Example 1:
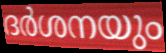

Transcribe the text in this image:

ദർശനയും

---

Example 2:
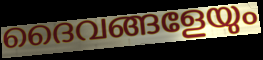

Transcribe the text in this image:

ദൈവങ്ങളേയും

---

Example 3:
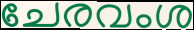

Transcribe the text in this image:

ചേരവംശ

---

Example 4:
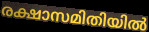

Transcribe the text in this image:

രക്ഷാസമിതിയിൽ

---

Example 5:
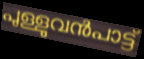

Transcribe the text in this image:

പുള്ളുവൻപാട്ട്